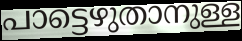
പാട്ടെഴുതാനുള്ള